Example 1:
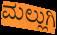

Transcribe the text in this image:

ಮಲ್ಲುಗಿ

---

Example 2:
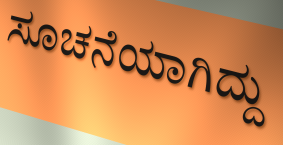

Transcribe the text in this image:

ಸೂಚನೆಯಾಗಿದ್ದು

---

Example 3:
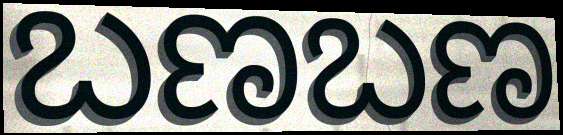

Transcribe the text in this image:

ಬಣಬಣ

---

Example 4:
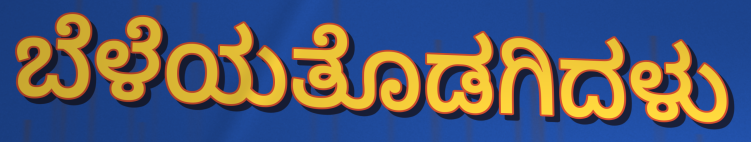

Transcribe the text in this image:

ಬೆಳೆಯತೊಡಗಿದಳು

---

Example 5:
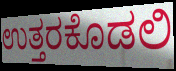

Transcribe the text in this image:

ಉತ್ತರಕೊಡಲಿ